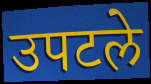
उपटले